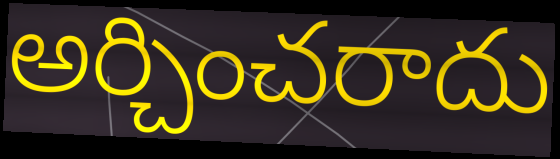
అర్చించరాదు